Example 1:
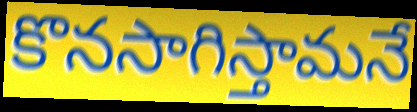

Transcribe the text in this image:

కొనసాగిస్తామనే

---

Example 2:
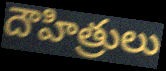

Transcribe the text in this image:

దౌహిత్రులు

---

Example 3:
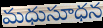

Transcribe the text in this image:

మధుసూధన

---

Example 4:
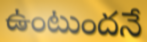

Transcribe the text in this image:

ఉంటుందనే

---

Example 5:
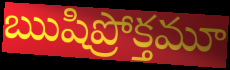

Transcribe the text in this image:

ఋషిప్రోక్తమూ